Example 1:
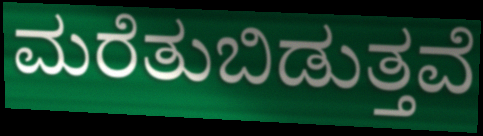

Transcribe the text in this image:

ಮರೆತುಬಿಡುತ್ತವೆ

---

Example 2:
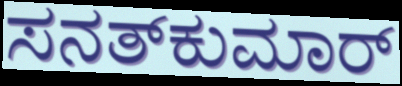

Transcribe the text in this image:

ಸನತ್‌ಕುಮಾರ್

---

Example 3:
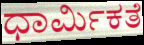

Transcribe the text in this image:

ಧಾರ್ಮಿಕತೆ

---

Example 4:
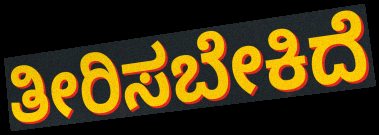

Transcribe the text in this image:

ತೀರಿಸಬೇಕಿದೆ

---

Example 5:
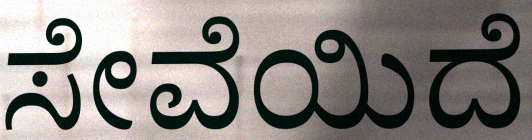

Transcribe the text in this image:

ಸೇವೆಯಿದೆ